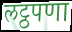
लट्ठपणा